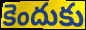
కెందుకు